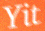
Yit